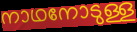
നാഥനോടുള്ള